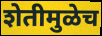
शेतीमुळेच